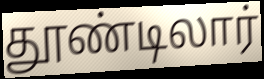
தூண்டிலார்